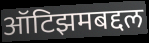
ऑटिझमबद्दल